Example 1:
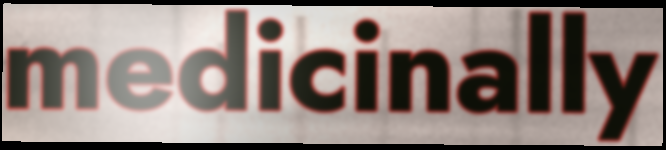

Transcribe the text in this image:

medicinally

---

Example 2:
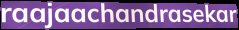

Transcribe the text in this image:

raajaachandrasekar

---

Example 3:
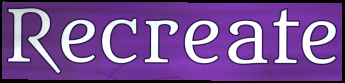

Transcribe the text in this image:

Recreate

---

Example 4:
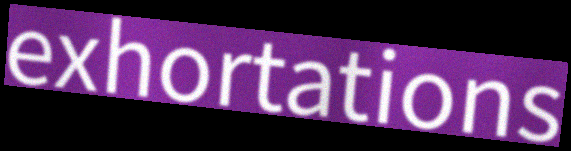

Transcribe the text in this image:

exhortations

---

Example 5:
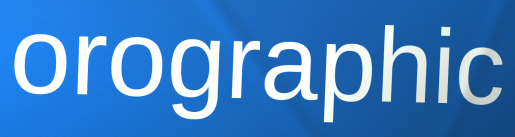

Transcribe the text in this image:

orographic